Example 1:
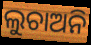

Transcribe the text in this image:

ଲୁଚାଅନି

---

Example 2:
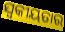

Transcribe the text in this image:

ସ୍ୱକୀୟତାର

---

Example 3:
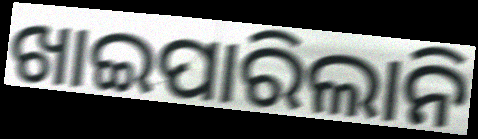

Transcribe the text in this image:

ଖାଇପାରିଲାନି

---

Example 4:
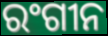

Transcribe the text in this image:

ରଂଗୀନ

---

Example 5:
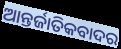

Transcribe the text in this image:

ଆନ୍ତର୍ଜାତିକବାଦର